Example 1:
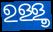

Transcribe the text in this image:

ഉള്ളൂ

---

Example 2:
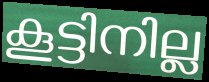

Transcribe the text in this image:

കൂട്ടിനില്ല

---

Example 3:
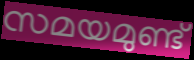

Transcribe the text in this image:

സമയമുണ്ട്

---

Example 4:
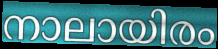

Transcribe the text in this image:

നാലായിരം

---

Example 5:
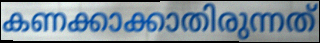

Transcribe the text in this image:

കണക്കാക്കാതിരുന്നത്